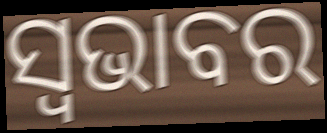
ସ୍ୱଭାବର